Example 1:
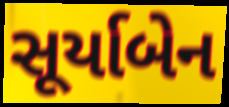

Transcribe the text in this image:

સૂર્યાબેન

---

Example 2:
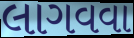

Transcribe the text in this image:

લાગવવા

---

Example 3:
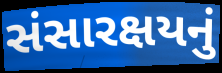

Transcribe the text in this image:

સંસારક્ષયનું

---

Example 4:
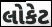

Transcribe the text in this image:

લોકેટ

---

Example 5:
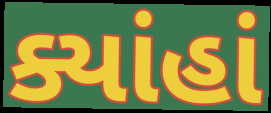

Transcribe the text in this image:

ક્યાંહાં